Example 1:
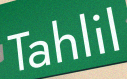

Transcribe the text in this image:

Tahlil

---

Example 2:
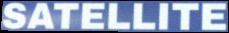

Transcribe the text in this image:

SATELLITE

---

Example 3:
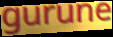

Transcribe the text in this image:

gurune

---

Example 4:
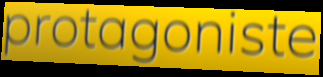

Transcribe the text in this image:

protagoniste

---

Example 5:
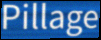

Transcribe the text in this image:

Pillage